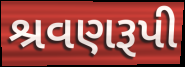
શ્રવણરૂપી